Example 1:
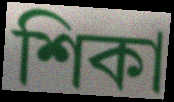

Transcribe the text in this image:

শিকা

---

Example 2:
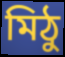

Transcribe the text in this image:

মিঠু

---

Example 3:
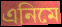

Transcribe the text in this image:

এনিমে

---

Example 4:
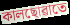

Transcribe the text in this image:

কালছোৱাতে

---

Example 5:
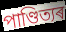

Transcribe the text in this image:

পাণ্ডিত্যৰ